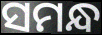
ସମନ୍ଧ